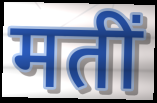
मतीं